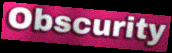
Obscurity